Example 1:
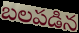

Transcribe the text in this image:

బలపడిన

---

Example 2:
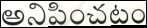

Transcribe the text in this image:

అనిపించటం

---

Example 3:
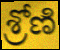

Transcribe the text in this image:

శ్రోణి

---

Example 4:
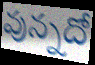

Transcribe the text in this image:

వున్నదో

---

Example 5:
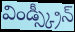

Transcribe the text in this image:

విండ్స్క్రీన్